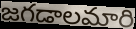
జగడాలమారి